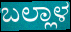
ಬಲ್ಲಾಳ